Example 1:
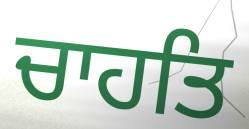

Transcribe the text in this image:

ਚਾਹਤਿ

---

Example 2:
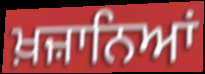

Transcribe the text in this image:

ਖ਼ਜ਼ਾਨਿਆਂ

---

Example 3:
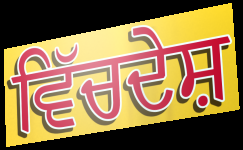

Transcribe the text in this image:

ਵਿੱਚਦੇਸ਼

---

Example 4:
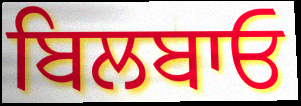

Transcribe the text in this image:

ਬਿਲਬਾਓ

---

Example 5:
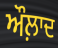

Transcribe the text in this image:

ਔਲ਼ਾਦ